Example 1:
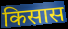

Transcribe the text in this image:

किसास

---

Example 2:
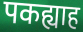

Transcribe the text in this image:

पकह्याह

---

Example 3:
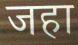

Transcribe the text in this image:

जहा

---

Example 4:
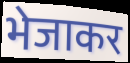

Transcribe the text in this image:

भेजाकर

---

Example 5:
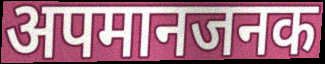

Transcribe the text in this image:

अपमानजनक